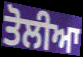
ਤੋਲੀਆ